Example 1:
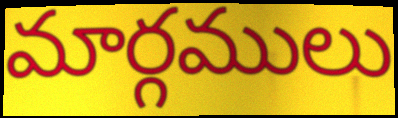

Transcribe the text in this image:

మార్గములు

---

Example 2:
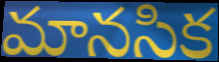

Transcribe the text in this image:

మానసిక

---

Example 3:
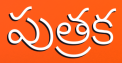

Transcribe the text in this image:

పుత్రక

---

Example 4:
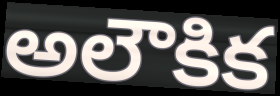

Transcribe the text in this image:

అలౌకిక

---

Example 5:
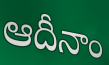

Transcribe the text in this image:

ఆదీనాం